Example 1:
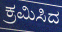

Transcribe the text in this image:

ಕ್ರಮಿಸಿದ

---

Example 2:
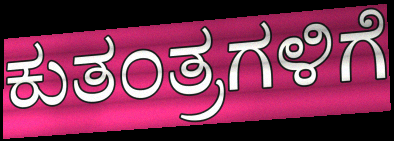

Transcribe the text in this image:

ಕುತಂತ್ರಗಳಿಗೆ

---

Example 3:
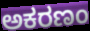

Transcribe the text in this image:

ಅಕರಣಂ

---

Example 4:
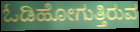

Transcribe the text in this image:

ಓಡಿಹೋಗುತ್ತಿರುವ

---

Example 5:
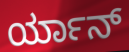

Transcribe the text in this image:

ರ್ಯಾನ್